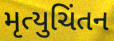
મૃત્યુચિંતન